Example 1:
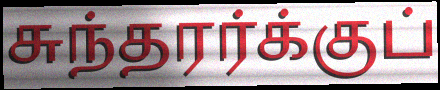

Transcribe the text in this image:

சுந்தரர்க்குப்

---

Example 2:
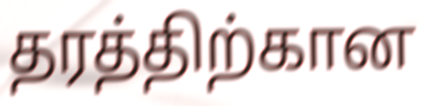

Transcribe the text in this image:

தரத்திற்கான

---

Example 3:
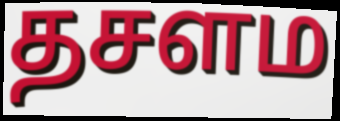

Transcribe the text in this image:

தசளம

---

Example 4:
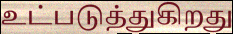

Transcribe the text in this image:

உட்படுத்துகிறது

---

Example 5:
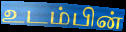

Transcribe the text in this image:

உடம்பின்